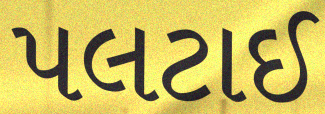
પલટાઈ